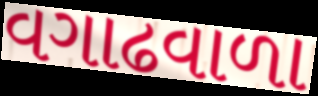
વગાઢવાળા